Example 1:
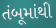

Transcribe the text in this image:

તંબૂમાંથી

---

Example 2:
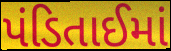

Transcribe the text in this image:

પંડિતાઈમાં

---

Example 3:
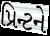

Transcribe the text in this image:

પ્રિન્ટને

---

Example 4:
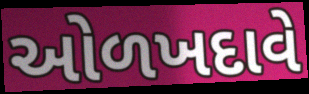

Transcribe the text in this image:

ઓળખદાવે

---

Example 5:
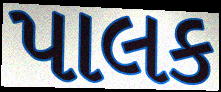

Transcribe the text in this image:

પાલક